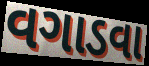
વગાડવા